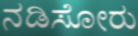
ನಡಿಸೋರು